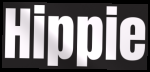
Hippie